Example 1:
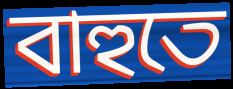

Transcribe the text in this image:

বাহুতে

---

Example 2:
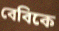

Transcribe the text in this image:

বেবিকে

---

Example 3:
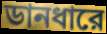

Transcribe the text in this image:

ডানধারে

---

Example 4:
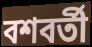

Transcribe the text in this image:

বশবর্তী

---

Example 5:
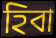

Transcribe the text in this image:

হিবা